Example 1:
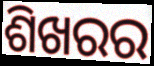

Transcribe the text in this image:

ଶିଖରର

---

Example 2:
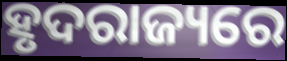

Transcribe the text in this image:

ହୃଦରାଜ୍ୟରେ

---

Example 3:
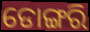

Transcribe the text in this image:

ଡୋଙ୍ଗରି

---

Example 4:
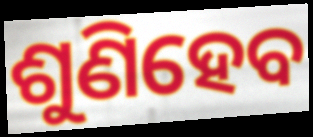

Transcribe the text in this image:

ଶୁଣିହେବ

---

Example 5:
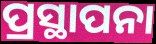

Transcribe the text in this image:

ପ୍ରସ୍ଥାପନା